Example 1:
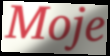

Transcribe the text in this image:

Moje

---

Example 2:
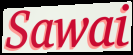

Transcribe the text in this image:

Sawai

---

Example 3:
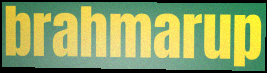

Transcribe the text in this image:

brahmarup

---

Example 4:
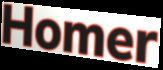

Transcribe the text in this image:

Homer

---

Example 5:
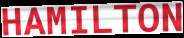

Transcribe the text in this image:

HAMILTON